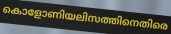
കൊളോണിയലിസത്തിനെതിരെ